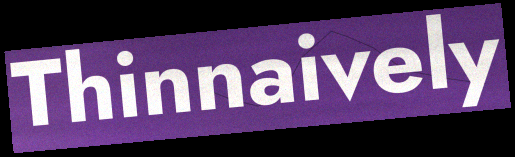
Thinnaively